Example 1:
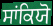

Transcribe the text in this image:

ਸਾਂਕਿਯੋ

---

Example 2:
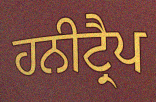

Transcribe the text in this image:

ਹਨੀਟ੍ਰੈਪ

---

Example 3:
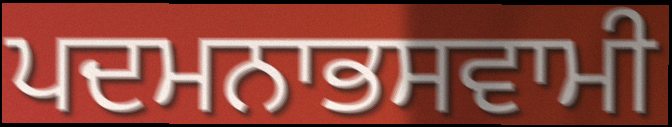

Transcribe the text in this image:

ਪਦਮਨਾਭਸਵਾਮੀ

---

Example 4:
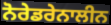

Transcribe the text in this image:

ਨੋਰੇਡਰੇਨਾਲੀਨ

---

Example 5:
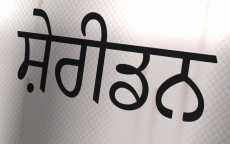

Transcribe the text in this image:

ਸ਼ੇਰੀਡਨ